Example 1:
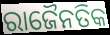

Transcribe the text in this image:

ରାଜୈନତିକ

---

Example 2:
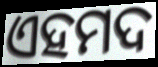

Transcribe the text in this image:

ଏହମଦ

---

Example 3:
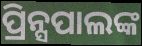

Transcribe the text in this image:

ପ୍ରିନ୍ସପାଲଙ୍କ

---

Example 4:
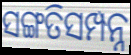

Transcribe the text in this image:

ସଙ୍ଗତିସମ୍ପନ୍ନ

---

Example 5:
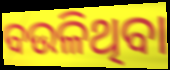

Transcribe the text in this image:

ବଉଳିଥିବା